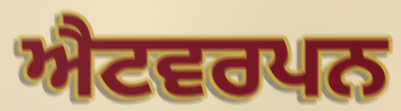
ਐਟਵਰਪਨ